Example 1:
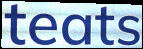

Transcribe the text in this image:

teats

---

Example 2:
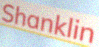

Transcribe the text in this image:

Shanklin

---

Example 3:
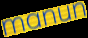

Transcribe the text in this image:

manun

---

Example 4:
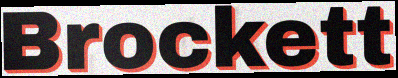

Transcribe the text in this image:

Brockett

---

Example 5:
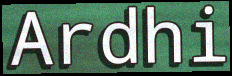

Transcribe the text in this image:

Ardhi